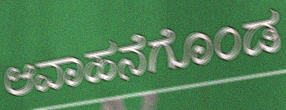
ಆವಾಹನೆಗೊಂಡ